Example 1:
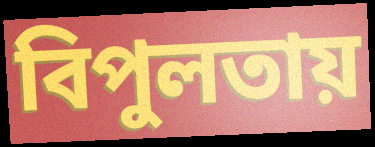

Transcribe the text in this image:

বিপুলতায়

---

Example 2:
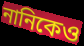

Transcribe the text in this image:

নানিকেও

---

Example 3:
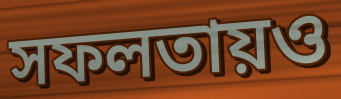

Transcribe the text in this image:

সফলতায়ও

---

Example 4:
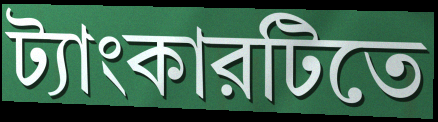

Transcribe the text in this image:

ট্যাংকারটিতে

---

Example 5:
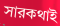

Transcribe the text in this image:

সারকথাই